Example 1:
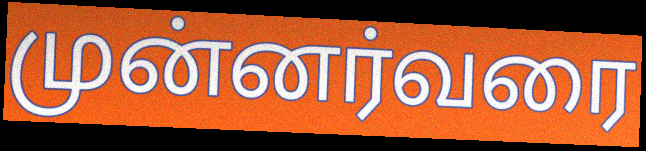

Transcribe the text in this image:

முன்னர்வரை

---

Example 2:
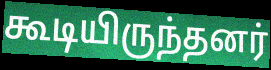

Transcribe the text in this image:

கூடியிருந்தனர்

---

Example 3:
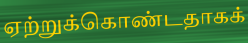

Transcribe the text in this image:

ஏற்றுக்கொண்டதாகக்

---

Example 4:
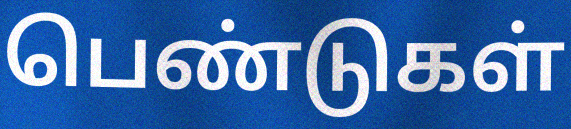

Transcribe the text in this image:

பெண்டுகள்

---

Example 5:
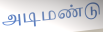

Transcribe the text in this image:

அடிமண்டு